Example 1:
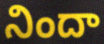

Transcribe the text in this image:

నిందా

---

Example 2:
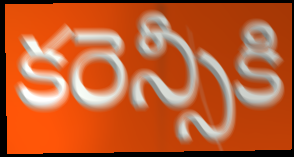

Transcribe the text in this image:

కరెన్సీకి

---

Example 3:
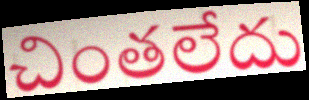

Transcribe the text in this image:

చింతలేదు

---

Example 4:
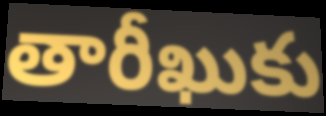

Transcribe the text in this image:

తారీఖుకు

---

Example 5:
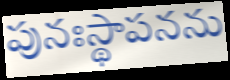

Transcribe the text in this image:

పునఃస్థాపనను